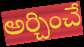
అర్చించే